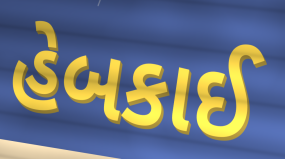
હેબકાઈ